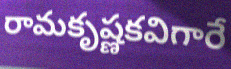
రామకృష్ణకవిగారే